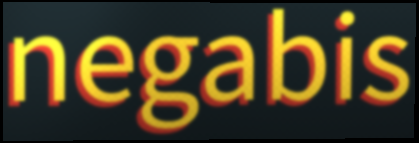
negabis